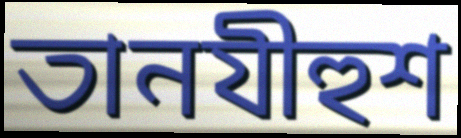
তানযীহুশ